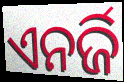
ଏନର୍ଜି